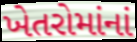
ખેતરોમાંનાં